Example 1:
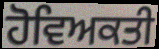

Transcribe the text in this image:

ਹੋਵਿਅਕਤੀ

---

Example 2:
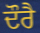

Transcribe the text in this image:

ਦੌਰੈ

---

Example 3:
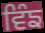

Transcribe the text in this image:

ਵਿੰਙ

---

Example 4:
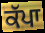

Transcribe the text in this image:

ਕੱਪਾ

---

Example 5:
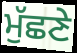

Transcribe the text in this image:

ਮੁੱਛਣੇ